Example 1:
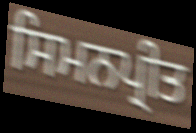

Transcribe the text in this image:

ਸਿਮਨਪ੍ਰੀਤ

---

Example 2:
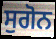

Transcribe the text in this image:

ਸੁਗੋਨ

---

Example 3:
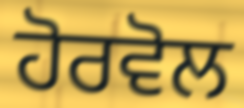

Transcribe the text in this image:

ਹੋਰਵੋਲ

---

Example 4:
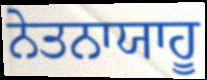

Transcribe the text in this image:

ਨੇਤਨਾਯਾਹੂ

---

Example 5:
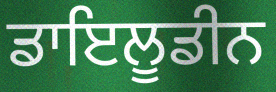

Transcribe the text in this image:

ਡਾਇਲੂਡੀਨ